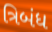
ત્રિબંધ